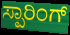
ಸ್ಪಾರಿಂಗ್